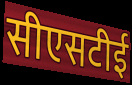
सीएसटीई